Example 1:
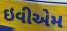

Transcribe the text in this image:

ઇવીએમ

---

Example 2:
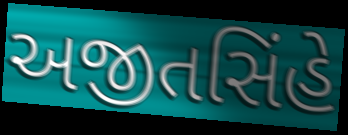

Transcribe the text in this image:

અજીતસિંહે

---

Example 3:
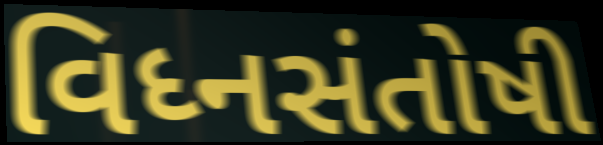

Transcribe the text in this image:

વિધ્નસંતોષી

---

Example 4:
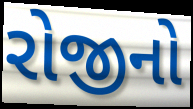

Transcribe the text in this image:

રોજીનો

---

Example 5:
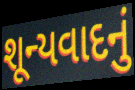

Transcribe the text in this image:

શૂન્યવાદનું